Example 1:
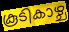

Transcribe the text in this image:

കൂടികാഴ്ച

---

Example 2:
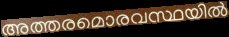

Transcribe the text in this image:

അത്തരമൊരവസ്ഥയിൽ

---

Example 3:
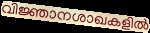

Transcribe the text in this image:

വിജ്ഞാനശാഖകളിൽ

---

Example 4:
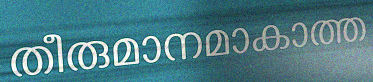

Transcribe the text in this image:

തീരുമാനമാകാത്ത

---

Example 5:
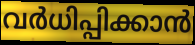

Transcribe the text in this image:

വർധിപ്പിക്കാൻ